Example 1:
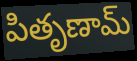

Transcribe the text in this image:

పితృణామ్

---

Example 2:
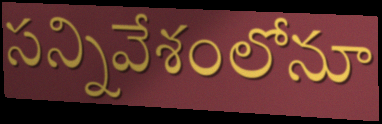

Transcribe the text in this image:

సన్నివేశంలోనూ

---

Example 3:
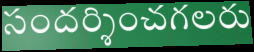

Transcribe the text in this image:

సందర్శించగలరు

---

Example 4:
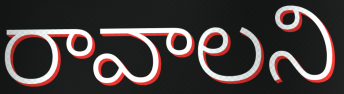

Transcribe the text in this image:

రావాలని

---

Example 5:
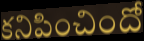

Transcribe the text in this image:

కనిపించిందో